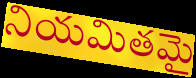
నియమితమై